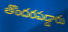
తొందరపడ్డారు